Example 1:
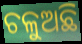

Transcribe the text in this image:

ଚଳୁଅଛି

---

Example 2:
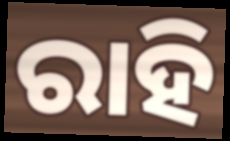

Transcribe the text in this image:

ରାହି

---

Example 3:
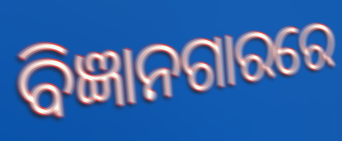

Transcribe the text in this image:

ବିଜ୍ଞାନଗାରରେ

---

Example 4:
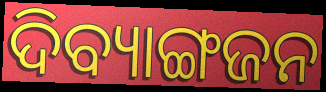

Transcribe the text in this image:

ଦିବ୍ୟାଙ୍ଗଜନ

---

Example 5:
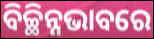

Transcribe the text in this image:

ବିଚ୍ଛିନ୍ନଭାବରେ